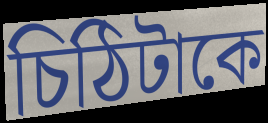
চিঠিটাকে